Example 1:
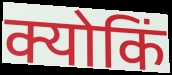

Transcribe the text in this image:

क्योकिं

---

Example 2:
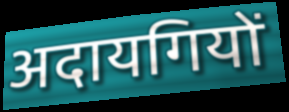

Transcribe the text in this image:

अदायगियों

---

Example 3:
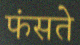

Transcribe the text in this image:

फंसते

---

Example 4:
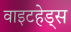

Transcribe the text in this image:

वाइटहेड्स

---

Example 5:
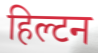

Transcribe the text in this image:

हिल्टन